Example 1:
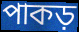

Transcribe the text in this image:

পাকড়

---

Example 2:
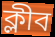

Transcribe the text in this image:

ক্লীব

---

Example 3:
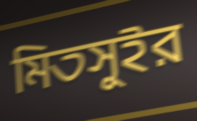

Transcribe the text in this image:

মিতসুইর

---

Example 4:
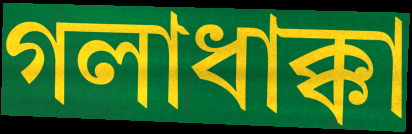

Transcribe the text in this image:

গলাধাক্কা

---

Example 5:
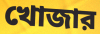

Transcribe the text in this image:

খোজার